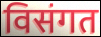
विसंगत